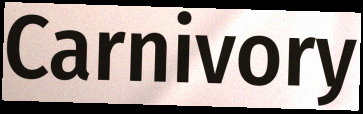
Carnivory